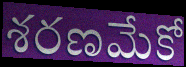
శరణమేకో